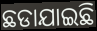
ଛଡାଯାଇଛି